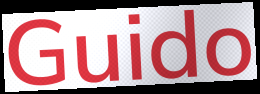
Guido